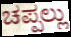
ಚಪ್ಪಲ್ಲು